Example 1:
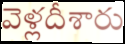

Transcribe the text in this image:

వెళ్లదీశారు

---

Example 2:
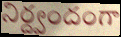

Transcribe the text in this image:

నిర్ద్వందంగా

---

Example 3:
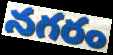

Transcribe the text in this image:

నగరం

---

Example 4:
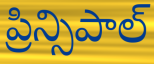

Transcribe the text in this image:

ప్రిన్సిపాల్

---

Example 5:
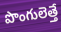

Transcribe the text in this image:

పొంగులెత్తే